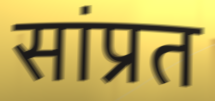
सांप्रत